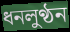
ধনলুণ্ঠন